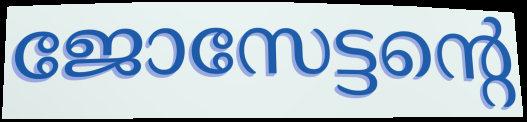
ജോസേട്ടന്റെ